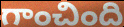
గాంచింది